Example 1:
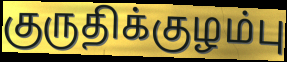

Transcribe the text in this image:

குருதிக்குழம்பு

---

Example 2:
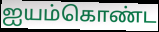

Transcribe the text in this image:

ஐயம்கொண்ட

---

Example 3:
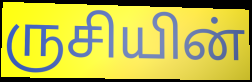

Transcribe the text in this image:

ருசியின்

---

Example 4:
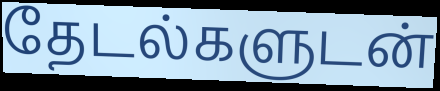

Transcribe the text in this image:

தேடல்களுடன்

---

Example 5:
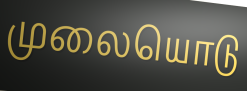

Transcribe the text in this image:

முலையொடு